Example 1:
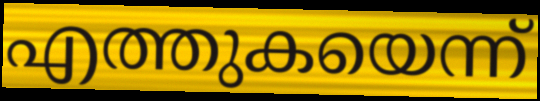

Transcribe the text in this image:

എത്തുകയെന്ന്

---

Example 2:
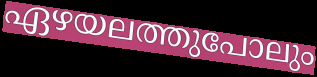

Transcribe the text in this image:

ഏഴയലത്തുപോലും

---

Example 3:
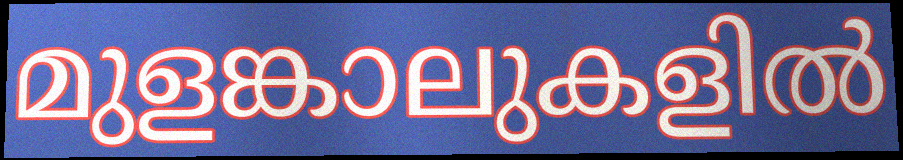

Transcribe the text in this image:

മുളങ്കാലുകളിൽ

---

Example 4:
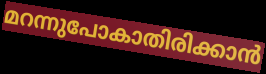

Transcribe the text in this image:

മറന്നുപോകാതിരിക്കാൻ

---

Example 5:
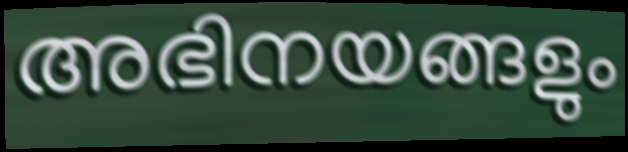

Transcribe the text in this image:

അഭിനയങ്ങളും